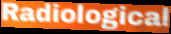
Radiological